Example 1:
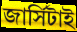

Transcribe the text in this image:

জার্সিটাই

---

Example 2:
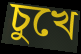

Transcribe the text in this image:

চুখে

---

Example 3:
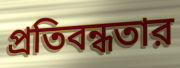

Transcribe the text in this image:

প্রতিবন্ধতার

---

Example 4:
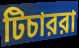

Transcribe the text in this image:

টিচাররা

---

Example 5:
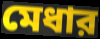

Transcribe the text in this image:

মেধার